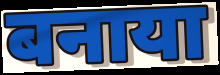
बनाया